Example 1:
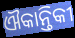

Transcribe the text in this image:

ଐକାନ୍ତିକୀ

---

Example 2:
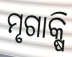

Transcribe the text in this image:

ମୃଗାକ୍ଷି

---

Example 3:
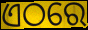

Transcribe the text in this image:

ଏଠରେ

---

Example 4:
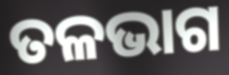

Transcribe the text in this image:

ତଳଭାଗ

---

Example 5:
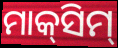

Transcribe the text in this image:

ମାକ୍‍ସିମ୍